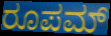
ರೂಪಮ್